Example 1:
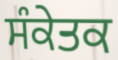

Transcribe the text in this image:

ਸੰਕੇਤਕ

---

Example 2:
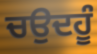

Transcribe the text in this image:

ਚਉਦਹੂੰ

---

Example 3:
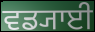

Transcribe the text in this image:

ਵਡ੍ਯਾਈ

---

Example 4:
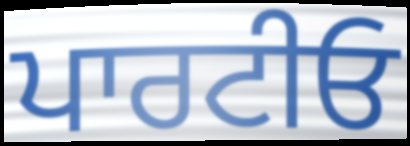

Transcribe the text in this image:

ਪਾਰਟੀਓ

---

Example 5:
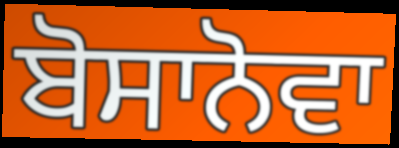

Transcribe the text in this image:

ਬੋਸਾਨੋਵਾ